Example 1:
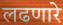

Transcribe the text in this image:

लढणारे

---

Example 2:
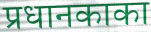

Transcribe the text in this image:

प्रधानकाका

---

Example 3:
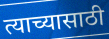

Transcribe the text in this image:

त्याच्यासाठी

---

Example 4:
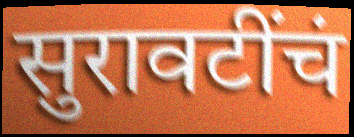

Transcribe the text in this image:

सुरावटींचं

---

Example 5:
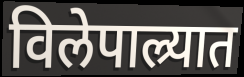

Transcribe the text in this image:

विलेपाल्र्यात